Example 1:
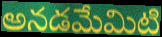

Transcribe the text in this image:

అనడమేమిటి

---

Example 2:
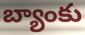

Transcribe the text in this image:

బ్యాంకు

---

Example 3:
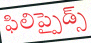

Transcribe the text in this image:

ఫిలిప్పైడ్స్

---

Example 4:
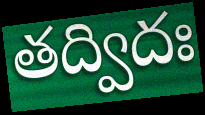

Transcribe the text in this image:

తద్విదః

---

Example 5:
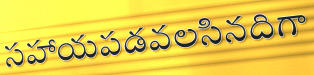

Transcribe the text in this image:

సహాయపడవలసినదిగా